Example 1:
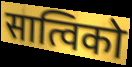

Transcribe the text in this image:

सात्विको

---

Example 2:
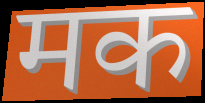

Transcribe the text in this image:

मक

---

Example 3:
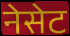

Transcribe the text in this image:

नेसेट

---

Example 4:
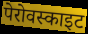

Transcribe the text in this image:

पेरोवस्काइट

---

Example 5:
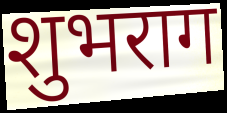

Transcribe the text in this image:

शुभराग